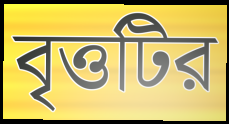
বৃত্তটির